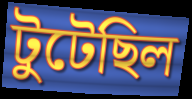
টুটেছিল